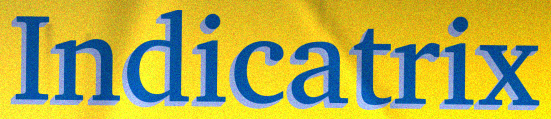
Indicatrix